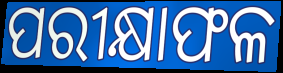
ପରୀକ୍ଷାଫଳ